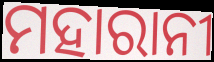
ମହାରାନୀ